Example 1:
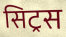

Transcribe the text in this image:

सिट्रस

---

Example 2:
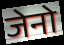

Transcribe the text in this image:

जेनो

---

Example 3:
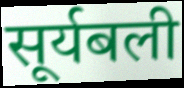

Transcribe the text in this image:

सूर्यबली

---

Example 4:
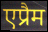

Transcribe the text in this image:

एप्रैम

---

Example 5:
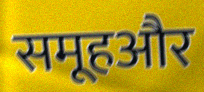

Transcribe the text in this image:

समूहऔर